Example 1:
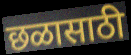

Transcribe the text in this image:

छळासाठी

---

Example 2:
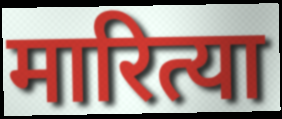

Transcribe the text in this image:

मारित्या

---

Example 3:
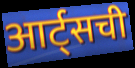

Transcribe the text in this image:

आर्ट्सची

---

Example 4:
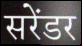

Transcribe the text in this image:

सरेंडर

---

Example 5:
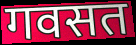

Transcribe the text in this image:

गवसत